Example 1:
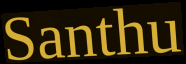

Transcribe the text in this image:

Santhu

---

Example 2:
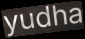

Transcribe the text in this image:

yudha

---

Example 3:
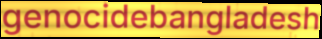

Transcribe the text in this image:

genocidebangladesh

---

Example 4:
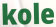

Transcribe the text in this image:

kole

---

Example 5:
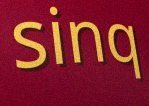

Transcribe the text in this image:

sinq